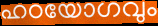
ഹഠയോഗവും